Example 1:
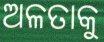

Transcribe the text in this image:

ଅଳତାକୁ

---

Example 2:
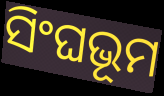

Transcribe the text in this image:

ସିଂଘଭୂମ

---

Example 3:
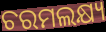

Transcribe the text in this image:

ଚରମଲକ୍ଷ୍ୟ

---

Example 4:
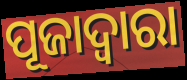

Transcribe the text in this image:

ପୂଜାଦ୍ଵାରା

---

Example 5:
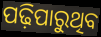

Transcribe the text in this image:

ପଢ଼ିପାରୁଥିବ